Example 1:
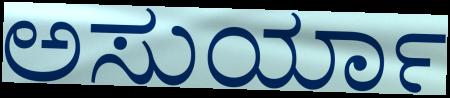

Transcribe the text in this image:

ಅಸುರ್ಯಾ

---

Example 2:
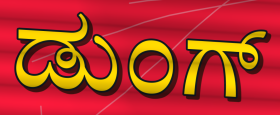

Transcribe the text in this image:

ಡುಂಗ್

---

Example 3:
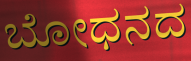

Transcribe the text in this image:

ಬೋಧನದ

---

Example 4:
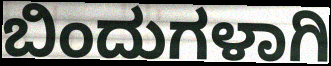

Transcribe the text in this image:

ಬಿಂದುಗಳಾಗಿ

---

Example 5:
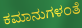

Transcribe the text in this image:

ಕಮಾನುಗಳಂತೆ